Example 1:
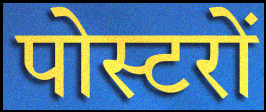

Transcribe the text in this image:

पोस्‍टरों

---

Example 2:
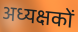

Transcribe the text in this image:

अध्यक्षकों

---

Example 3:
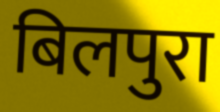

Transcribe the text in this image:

बिलपुरा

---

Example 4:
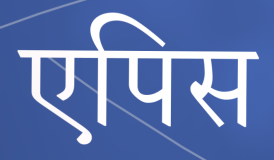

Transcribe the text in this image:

एपिस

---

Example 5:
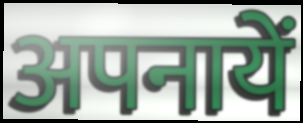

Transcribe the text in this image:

अपनायें